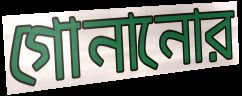
গোনানোর